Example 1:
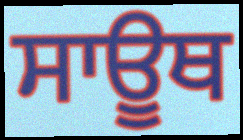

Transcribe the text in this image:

ਸਾਊਥ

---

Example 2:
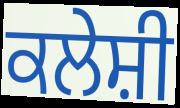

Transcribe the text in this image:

ਕਲੇਸ਼ੀ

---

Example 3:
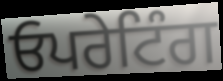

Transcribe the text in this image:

ਓਪਰੇਟਿੰਗ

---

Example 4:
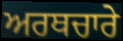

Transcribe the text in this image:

ਅਰਥਚਾਰੇ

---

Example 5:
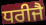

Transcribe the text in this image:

ਧਰੀਜੈ